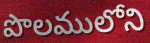
పొలములోని